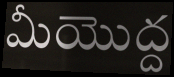
మీయొద్ద